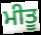
ਮੀਤੂ